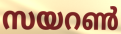
സയറൺ